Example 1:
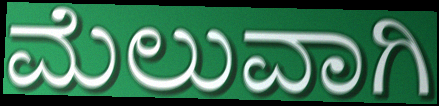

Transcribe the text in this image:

ಮೆಲುವಾಗಿ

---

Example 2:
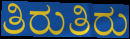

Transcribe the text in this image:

ತಿರುತಿರು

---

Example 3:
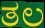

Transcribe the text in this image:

ತಲ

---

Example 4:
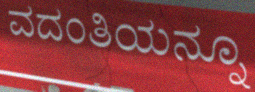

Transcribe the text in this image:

ವದಂತಿಯನ್ನೂ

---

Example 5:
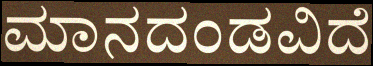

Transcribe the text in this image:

ಮಾನದಂಡವಿದೆ